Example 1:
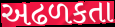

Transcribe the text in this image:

અઢળકતા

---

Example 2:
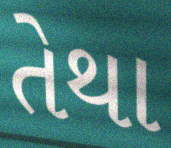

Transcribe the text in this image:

તેથા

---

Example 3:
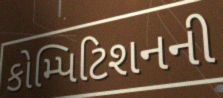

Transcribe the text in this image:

કોમ્પિટિશનની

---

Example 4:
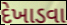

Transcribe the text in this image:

દેખાડવા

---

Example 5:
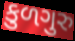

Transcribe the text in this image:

કુળગુરુ